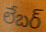
లేబర్